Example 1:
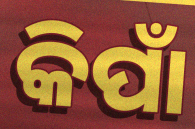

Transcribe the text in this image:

କିପାଁ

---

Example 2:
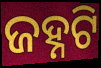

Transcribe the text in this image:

ଜହ୍ନଟି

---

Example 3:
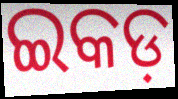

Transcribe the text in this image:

ଇକଡ଼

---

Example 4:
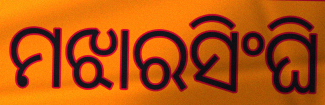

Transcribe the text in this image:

ମଝାରସିଂଘି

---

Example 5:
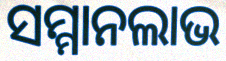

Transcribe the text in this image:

ସମ୍ମାନଲାଭ